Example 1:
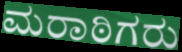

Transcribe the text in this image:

ಮರಾಠಿಗರು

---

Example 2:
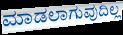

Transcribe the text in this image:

ಮಾಡಲಾಗುವುದಿಲ್ಲ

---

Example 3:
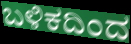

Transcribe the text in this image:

ಬಳಿಕದಿಂದ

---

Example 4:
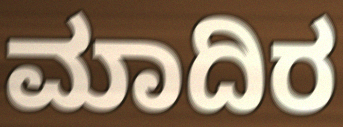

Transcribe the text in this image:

ಮಾದಿರ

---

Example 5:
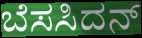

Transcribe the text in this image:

ಬೆಸಸಿದನ್